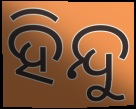
ହିନ୍ଦୁ